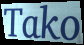
Tako